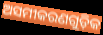
ଅସମୀକରଣଗୁଡ଼ିକ